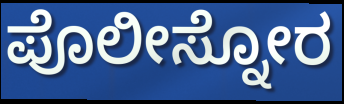
ಪೊಲೀಸ್ನೋರ